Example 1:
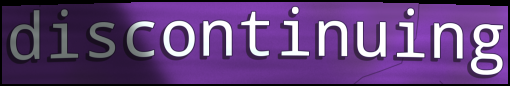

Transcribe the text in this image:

discontinuing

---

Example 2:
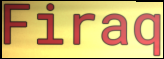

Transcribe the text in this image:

Firaq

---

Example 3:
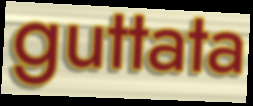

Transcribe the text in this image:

guttata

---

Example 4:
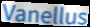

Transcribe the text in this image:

Vanellus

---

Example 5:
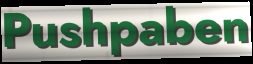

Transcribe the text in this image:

Pushpaben